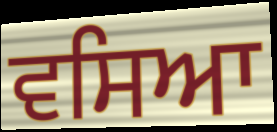
ਵਸਿਆ